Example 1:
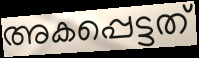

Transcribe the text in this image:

അകപ്പെട്ടത്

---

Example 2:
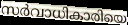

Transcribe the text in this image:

സർവാധികാരിയെ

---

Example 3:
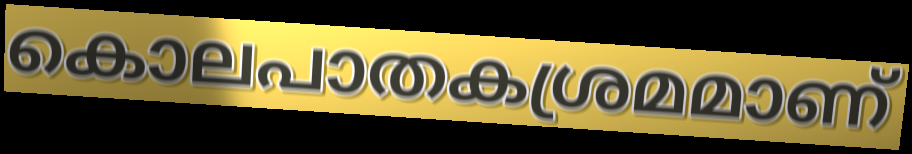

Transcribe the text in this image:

കൊലപാതകശ്രമമാണ്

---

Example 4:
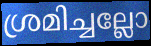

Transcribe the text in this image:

ശ്രമിച്ചല്ലോ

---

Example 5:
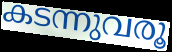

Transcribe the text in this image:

കടന്നുവരൂ